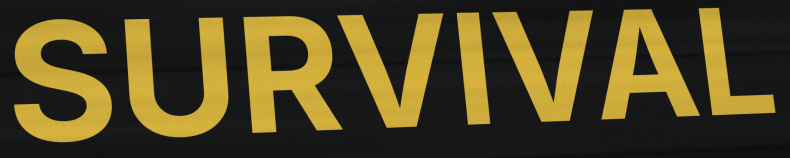
SURVIVAL